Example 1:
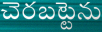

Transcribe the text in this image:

చెరబట్టెను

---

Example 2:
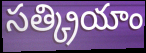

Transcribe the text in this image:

సత్క్రియాం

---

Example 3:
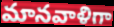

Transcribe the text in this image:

మానవాళిగా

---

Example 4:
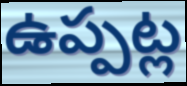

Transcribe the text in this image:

ఉప్పట్ల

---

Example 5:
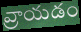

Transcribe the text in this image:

వ్రాయడం